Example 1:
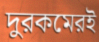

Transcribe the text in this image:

দুরকমেরই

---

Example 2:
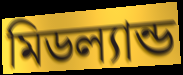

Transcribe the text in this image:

মিডল্যান্ড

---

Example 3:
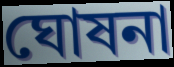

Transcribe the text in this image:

ঘোষনা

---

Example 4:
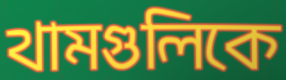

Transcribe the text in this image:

থামগুলিকে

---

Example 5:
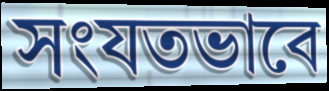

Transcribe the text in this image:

সংযতভাবে